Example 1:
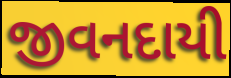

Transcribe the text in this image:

જીવનદાયી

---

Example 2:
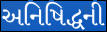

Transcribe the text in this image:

અનિષિદ્ધની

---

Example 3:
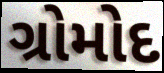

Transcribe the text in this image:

ગ્રોમોદ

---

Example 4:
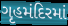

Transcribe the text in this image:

ગૃહમંદિરમાં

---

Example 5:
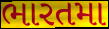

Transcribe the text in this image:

ભારતમા